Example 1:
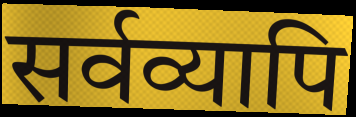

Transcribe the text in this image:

सर्वव्यापि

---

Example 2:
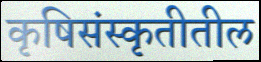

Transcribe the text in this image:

कृषिसंस्कृतीतील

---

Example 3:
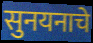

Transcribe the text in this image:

सुनयनाचे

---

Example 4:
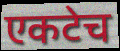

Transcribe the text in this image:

एकटेच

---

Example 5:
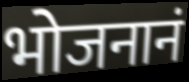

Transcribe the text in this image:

भोजनानं